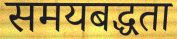
समयबद्धता